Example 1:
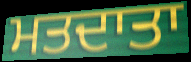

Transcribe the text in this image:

ਮਤਦਾਤਾ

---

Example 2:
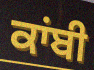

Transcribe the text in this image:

ਕਾਂਬੀ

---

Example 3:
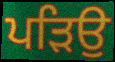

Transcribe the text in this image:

ਪੜਿਉ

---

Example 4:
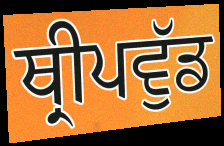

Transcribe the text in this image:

ਥ੍ਰੀਪਵੁੱਡ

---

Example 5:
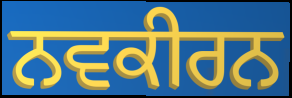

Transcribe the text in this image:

ਨਵਕੀਰਨ